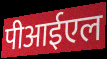
पीआईएल